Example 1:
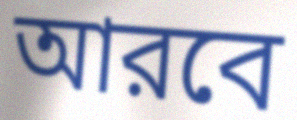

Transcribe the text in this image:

আরবে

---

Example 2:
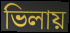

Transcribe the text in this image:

ভিলায়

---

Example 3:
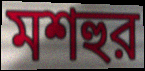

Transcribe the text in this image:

মশহুর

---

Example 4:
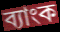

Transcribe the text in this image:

ব্যাংক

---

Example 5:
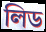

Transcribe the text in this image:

লিড